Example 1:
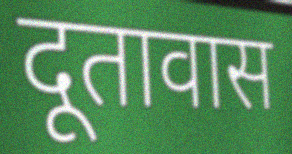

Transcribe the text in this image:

दूतावास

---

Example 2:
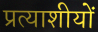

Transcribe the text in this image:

प्रत्याशीयों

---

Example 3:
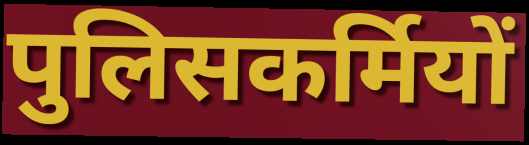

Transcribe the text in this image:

पुलिसकर्मियों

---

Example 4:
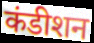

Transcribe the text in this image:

कंडीशन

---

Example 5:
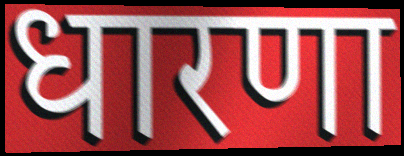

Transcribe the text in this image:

धारणा